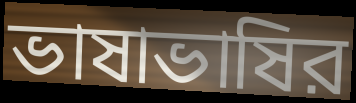
ভাষাভাষির